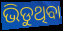
ଭିଡୁଥିବା